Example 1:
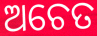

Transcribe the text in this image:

ଅଚେତ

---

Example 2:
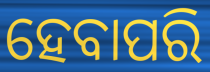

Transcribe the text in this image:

ହେବାପରି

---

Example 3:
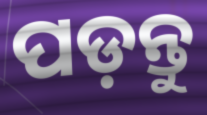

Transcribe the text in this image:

ପଡ଼ନ୍ତୁ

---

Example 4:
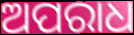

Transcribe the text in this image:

ଅପରାଧ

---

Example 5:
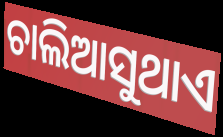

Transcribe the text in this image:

ଚାଲିଆସୁଥାଏ